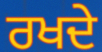
ਰਖਦੇ